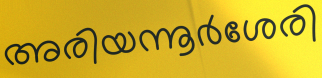
അരിയന്നൂർശേരി